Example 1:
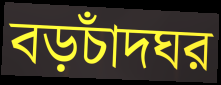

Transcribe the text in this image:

বড়চাঁদঘর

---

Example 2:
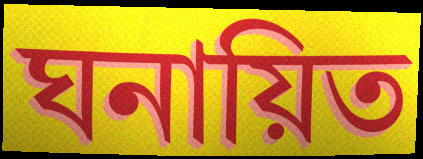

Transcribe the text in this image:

ঘনায়িত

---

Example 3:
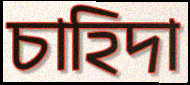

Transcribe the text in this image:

চাহিদা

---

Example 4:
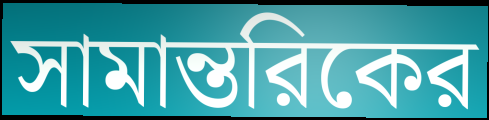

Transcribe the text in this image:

সামান্তরিকের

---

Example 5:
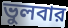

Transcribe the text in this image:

ভুলবার